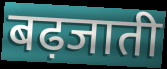
बढ़जाती